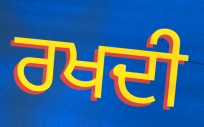
ਰਖਦੀ